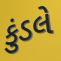
કુંડલે